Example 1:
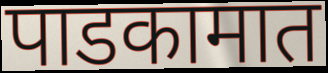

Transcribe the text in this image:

पाडकामात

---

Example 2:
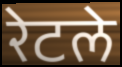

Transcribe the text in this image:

रेटले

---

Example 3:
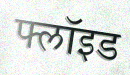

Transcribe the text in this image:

फ्लॉइड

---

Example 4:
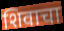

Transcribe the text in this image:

शिवाचा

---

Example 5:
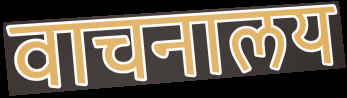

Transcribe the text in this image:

वाचनालय